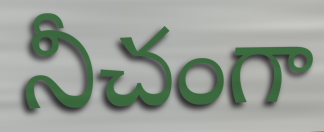
నీచంగా